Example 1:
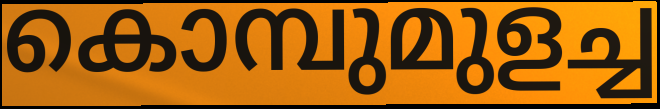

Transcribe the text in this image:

കൊമ്പുമുളച്ച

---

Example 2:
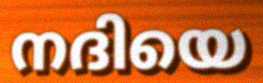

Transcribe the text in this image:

നദിയെ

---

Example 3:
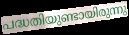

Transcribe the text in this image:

പദ്ധതിയുണ്ടായിരുന്നു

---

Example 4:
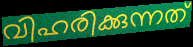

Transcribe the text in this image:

വിഹരിക്കുന്നത്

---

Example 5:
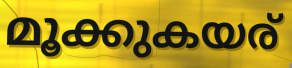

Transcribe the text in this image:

മൂക്കുകയര്